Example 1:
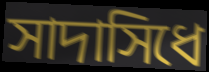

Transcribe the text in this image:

সাদাসিধে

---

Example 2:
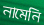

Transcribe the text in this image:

নামেনি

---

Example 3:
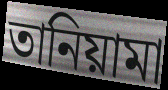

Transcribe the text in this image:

তানিয়ামা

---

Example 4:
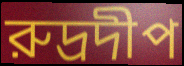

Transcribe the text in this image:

রুদ্রদীপ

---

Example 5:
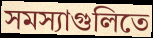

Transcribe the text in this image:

সমস্যাগুলিতে